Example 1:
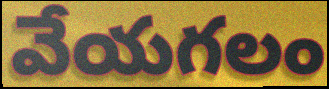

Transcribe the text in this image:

వేయగలం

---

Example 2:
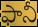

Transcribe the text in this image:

ఫానీ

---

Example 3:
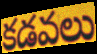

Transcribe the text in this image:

కడవలు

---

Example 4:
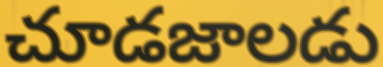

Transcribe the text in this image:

చూడజాలడు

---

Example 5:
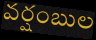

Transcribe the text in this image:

వర్షంబుల